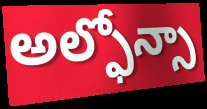
అల్ఫోన్సా